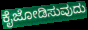
ಕೈಜೋಡಿಸುವುದು